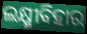
ଲକ୍ଷ୍ମୀବିହାର